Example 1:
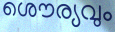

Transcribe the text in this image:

ശൌര്യവും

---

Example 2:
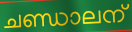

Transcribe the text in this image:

ചണ്ഡാലന്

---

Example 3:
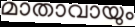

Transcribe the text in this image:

മാതാവായും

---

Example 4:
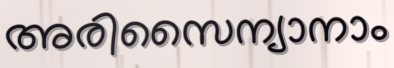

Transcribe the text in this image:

അരിസൈന്യാനാം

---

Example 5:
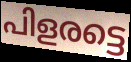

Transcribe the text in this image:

പിളരട്ടെ